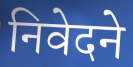
निवेदने